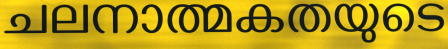
ചലനാത്മകതയുടെ